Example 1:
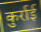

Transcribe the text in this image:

कुर्राई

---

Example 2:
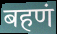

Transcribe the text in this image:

बहणं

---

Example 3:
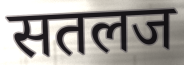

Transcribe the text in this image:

सतलज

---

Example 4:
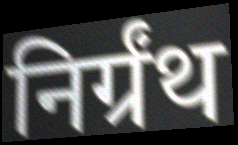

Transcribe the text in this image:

निर्ग्रंथ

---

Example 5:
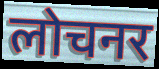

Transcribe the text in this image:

लोचनर